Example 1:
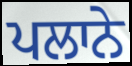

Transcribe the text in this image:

ਪਲਾਨੇ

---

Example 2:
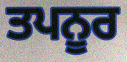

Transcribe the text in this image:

ਤਪਨੂਰ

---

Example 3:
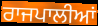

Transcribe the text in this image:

ਰਾਜਪਾਲੀਆਂ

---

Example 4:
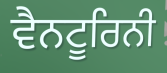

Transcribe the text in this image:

ਵੈਨਟੂਰਿਨੀ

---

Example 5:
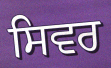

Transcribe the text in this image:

ਸਿਵਰ